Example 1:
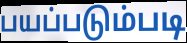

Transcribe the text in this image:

பயப்படும்படி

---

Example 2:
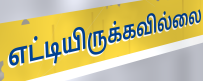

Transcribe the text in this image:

எட்டியிருக்கவில்லை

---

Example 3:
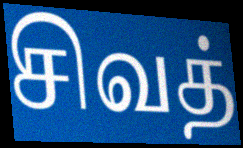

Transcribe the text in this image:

சிவத்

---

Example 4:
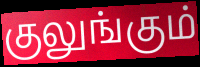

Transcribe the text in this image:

குலுங்கும்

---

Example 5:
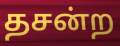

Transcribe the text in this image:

தசன்ற